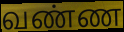
வண்ண